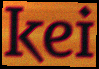
kei